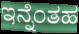
ಇನ್ನೆಂತಹ